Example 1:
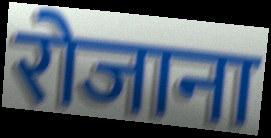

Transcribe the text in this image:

रोजाना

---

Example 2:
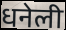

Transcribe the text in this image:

धनेली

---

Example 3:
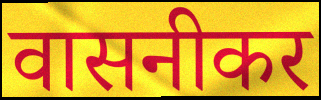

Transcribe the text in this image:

वासनीकर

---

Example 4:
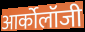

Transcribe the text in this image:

आर्कोलॉजी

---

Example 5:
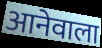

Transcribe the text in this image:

आनेवाला